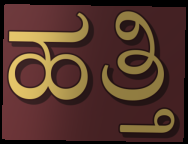
ಹತ್ತಿ